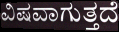
ವಿಷವಾಗುತ್ತದೆ